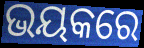
ଭୟକରେ